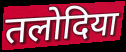
तलोदिया